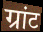
ग्रांट